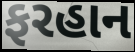
ફરહાન